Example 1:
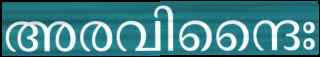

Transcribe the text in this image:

അരവിന്ദൈഃ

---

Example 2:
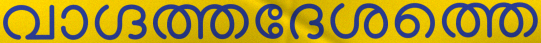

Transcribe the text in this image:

വാഗ്ദത്തദേശത്തെ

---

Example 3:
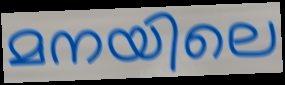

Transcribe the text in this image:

മനയിലെ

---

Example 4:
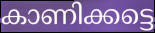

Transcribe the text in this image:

കാണിക്കട്ടെ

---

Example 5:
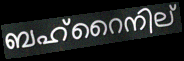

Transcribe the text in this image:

ബഹ്റൈനില്